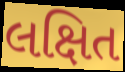
લક્ષિત